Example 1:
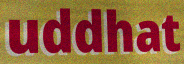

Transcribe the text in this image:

uddhat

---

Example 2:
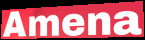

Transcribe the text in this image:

Amena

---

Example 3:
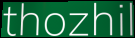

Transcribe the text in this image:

thozhil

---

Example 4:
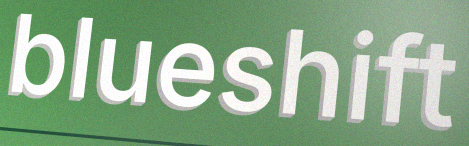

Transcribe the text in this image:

blueshift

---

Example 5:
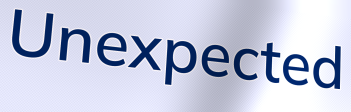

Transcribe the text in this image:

Unexpected